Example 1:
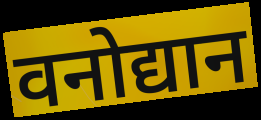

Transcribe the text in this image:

वनोद्यान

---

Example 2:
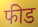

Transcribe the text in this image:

फीड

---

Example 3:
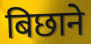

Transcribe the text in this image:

बिछाने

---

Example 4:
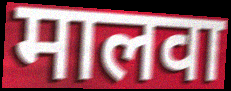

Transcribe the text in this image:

मालवा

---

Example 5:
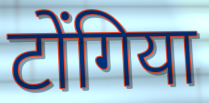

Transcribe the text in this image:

टोंगिया